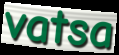
vatsa